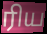
ரிய